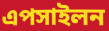
এপসাইলন